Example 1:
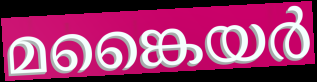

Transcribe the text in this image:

മങ്കൈയർ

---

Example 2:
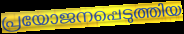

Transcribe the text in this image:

പ്രയോജനപ്പെടുത്തിയ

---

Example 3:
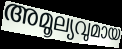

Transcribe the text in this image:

അമൂല്യവുമായ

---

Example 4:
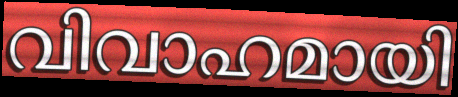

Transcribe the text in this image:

വിവാഹമായി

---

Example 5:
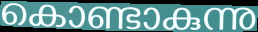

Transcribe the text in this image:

കൊണ്ടാകുന്നു